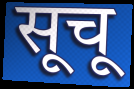
सूचू